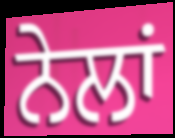
ਨੇਲਾਂ